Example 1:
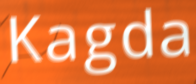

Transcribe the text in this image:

Kagda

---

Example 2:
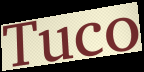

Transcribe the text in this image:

Tuco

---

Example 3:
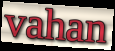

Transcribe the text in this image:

vahan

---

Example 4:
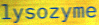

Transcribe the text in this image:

lysozyme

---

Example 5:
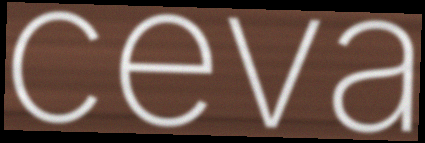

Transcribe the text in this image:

ceva